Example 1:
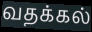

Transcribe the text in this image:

வதக்கல்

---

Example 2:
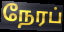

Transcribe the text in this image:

நேரப்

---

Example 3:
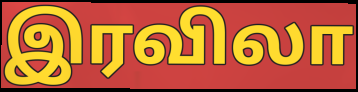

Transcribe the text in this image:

இரவிலா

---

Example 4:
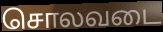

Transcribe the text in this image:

சொலவடை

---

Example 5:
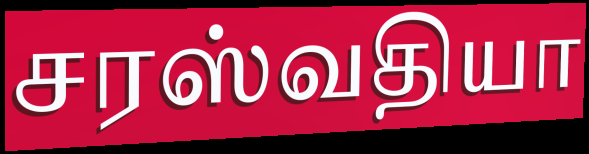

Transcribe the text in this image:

சரஸ்வதியா